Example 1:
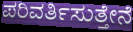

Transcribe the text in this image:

ಪರಿವರ್ತಿಸುತ್ತೇನೆ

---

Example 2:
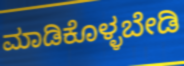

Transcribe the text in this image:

ಮಾಡಿಕೊಳ್ಳಬೇಡಿ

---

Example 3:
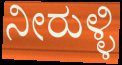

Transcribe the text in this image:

ನೀರುಳ್ಳಿ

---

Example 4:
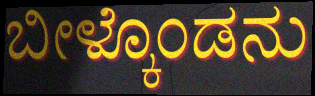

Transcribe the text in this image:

ಬೀಳ್ಕೊಂಡನು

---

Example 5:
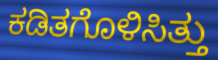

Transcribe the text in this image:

ಕಡಿತಗೊಳಿಸಿತ್ತು